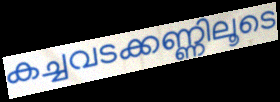
കച്ചവടക്കണ്ണിലൂടെ